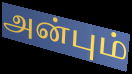
அன்பும்